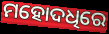
ମହୋଦଧିରେ